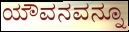
ಯೌವನವನ್ನೂ